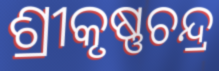
ଶ୍ରୀକୃଷ୍ଣଚନ୍ଦ୍ର